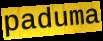
paduma